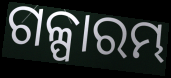
ଗଳ୍ପାରମ୍ଭ